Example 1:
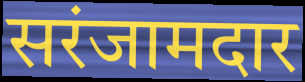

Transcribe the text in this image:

सरंजामदार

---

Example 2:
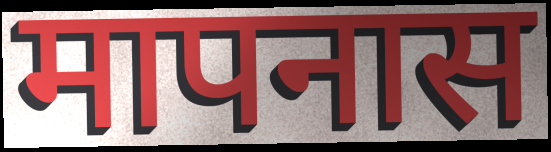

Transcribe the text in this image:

मापनास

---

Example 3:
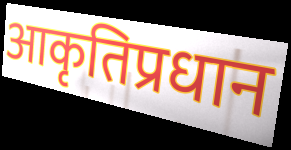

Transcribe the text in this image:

आकृतिप्रधान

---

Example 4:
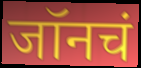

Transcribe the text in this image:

जॉनचं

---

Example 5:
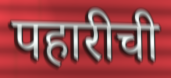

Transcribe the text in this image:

पहारीची